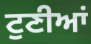
ਟੁਣੀਆਂ